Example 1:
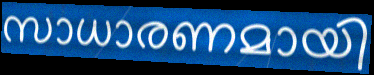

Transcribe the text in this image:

സാധാരണമായി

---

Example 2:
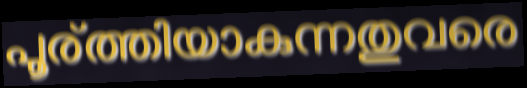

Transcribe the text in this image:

പൂര്ത്തിയാകുന്നതുവരെ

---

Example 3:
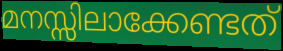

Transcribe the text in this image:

മനസ്സിലാക്കേണ്ടത്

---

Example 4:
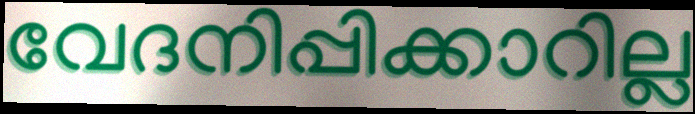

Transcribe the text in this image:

വേദനിപ്പിക്കാറില്ല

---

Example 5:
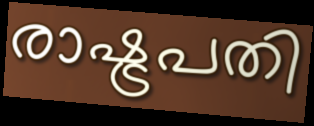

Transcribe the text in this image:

രാഷ്ട്രപതി